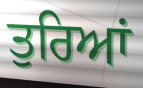
ਤੁਰਿਆਂ